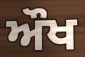
ਔਖ